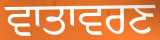
ਵਾਤਾਵਰਣ